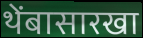
थेंबासारखा